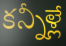
కన్నీళ్లే